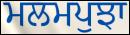
ਮਲਮਪੁਝਾ